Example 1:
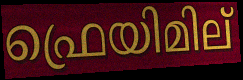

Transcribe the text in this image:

ഫ്രെയിമില്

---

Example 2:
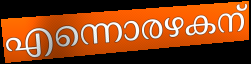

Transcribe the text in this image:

എന്നൊരഴകന്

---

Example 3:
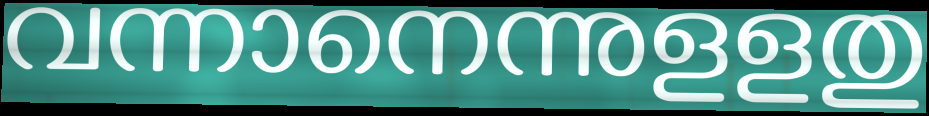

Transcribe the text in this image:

വന്നാനെന്നുളളതു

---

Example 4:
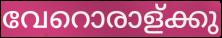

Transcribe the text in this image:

വേറൊരാള്ക്കു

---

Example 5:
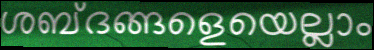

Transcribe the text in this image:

ശബ്ദങ്ങളെയെല്ലാം